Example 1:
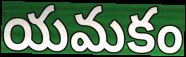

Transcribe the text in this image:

యమకం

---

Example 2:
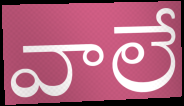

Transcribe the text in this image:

వాలే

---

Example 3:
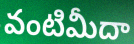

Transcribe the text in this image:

వంటిమీదా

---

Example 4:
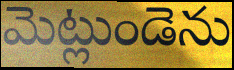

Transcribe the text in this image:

మెట్లుండెను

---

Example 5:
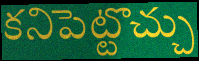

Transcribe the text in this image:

కనిపెట్టొచ్చు